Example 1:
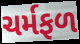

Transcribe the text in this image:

ચર્મફળ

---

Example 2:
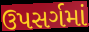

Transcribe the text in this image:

ઉપસર્ગમાં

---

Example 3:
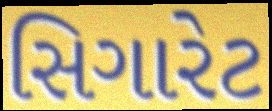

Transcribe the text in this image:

સિગારેટ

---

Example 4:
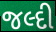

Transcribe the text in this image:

જલ્દી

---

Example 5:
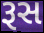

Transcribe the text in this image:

રૂસ